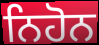
ਨਿਹੋਨ